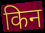
किन